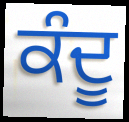
ਕੰਦੂ